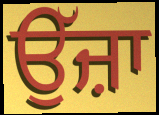
ਉੱਜ਼ਾ